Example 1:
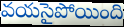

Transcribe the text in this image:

వయసైపోయింది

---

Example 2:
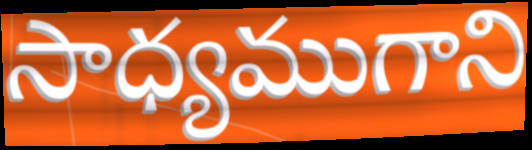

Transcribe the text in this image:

సాధ్యముగాని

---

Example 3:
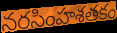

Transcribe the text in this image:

నరసింహశతకం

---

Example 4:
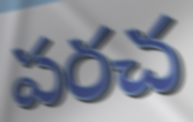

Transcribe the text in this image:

పరచ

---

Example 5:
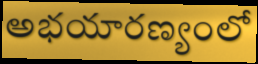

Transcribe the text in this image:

అభయారణ్యంలో